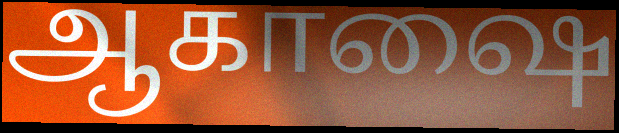
ஆகாஷை